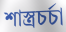
শাস্ত্রচর্চা